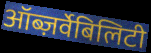
ऑब्ज़र्वेबिलिटी